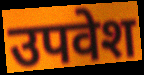
उपवेश